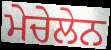
ਮੇਚੇਲੇਨ